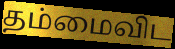
தம்மைவிட